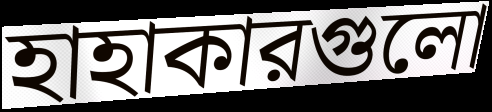
হাহাকারগুলো